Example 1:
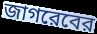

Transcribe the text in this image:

জাগরেবের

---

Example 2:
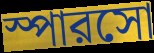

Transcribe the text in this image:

স্পারসো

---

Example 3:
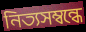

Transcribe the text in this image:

নিত্যসম্বন্ধে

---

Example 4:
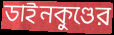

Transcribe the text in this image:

ডাইনকুণ্ডের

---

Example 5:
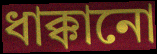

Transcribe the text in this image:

ধাক্কানো